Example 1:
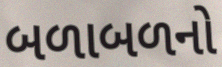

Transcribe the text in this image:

બળાબળનો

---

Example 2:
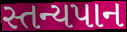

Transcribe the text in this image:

સ્તન્યપાન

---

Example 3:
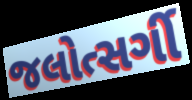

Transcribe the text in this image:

જલોત્સર્ગી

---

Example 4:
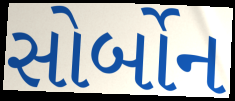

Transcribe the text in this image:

સોર્બોન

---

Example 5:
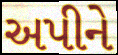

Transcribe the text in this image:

અપીને